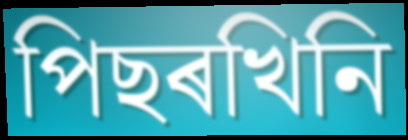
পিছৰখিনি